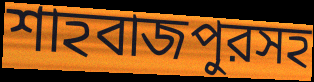
শাহবাজপুরসহ